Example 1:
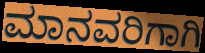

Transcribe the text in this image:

ಮಾನವರಿಗಾಗಿ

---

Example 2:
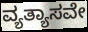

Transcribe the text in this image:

ವ್ಯತ್ಯಾಸವೇ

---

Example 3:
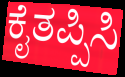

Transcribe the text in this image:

ಕೈತಪ್ಪಿಸಿ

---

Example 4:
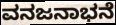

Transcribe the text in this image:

ವನಜನಾಭನೆ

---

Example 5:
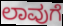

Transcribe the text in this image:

ಲಾವುಗೆ